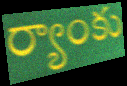
ర్యాంకు